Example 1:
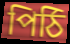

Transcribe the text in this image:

পিঠি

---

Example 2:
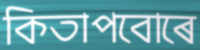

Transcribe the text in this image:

কিতাপবোৰে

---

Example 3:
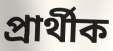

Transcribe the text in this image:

প্ৰাৰ্থীক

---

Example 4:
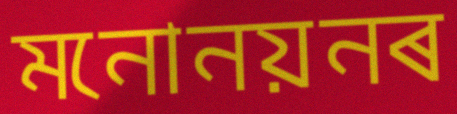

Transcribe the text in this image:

মনোনয়নৰ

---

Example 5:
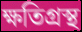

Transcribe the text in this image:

ক্ষতিগ্ৰস্থ